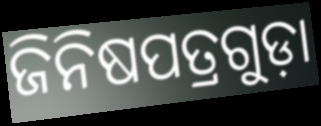
ଜିନିଷପତ୍ରଗୁଡ଼ା